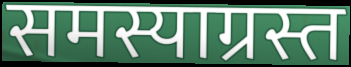
समस्याग्रस्त